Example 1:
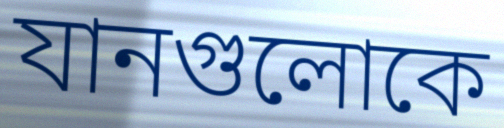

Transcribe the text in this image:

যানগুলোকে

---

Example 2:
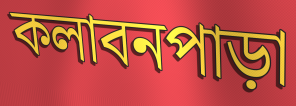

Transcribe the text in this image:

কলাবনপাড়া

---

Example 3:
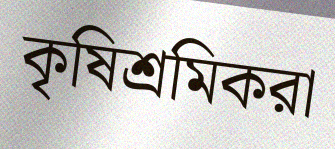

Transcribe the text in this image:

কৃষিশ্রমিকরা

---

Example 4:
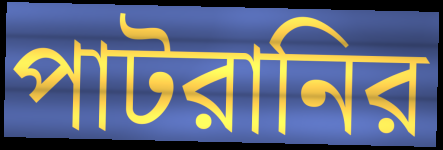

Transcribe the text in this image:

পাটরানির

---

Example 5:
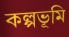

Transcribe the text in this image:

কল্পভূমি